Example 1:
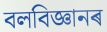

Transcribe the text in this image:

বলবিজ্ঞানৰ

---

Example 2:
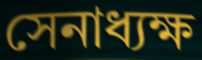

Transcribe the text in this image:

সেনাধ্যক্ষ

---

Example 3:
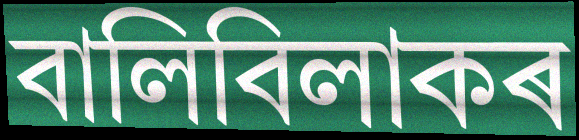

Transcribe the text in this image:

বালিবিলাকৰ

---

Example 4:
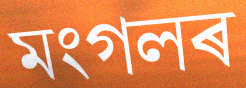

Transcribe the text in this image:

মংগলৰ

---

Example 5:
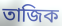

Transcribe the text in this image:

তাজিক